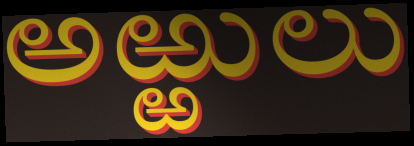
అఱ్ఱులు